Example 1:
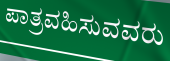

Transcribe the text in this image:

ಪಾತ್ರವಹಿಸುವವರು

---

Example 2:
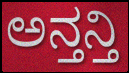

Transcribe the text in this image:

ಅನ್ತನ್ತಿ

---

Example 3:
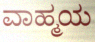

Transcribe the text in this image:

ವಾಹ್ಮಯ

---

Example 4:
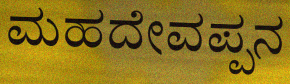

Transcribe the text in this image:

ಮಹದೇವಪ್ಪನ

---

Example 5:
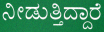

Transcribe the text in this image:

ನೀಡುತ್ತಿದ್ದಾರೆ